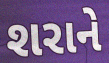
શરાને